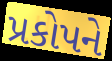
પ્રકોપને